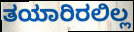
ತಯಾರಿರಲಿಲ್ಲ